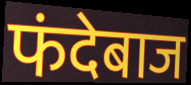
फंदेबाज